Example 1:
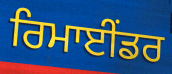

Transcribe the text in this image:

ਰਿਮਾਈਂਡਰ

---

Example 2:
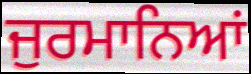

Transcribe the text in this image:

ਜੁਰਮਾਨਿਆਂ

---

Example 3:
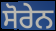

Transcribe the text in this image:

ਸੋਰੇਨ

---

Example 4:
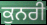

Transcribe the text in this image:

ਕੁਨਰੀ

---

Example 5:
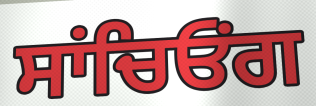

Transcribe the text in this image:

ਸਾਂਚਿਓਂਗ